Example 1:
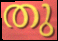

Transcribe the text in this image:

തു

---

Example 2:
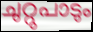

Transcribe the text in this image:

ചുറ്റുപാടും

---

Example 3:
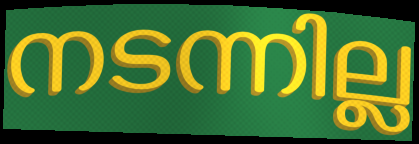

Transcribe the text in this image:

നടന്നില്ല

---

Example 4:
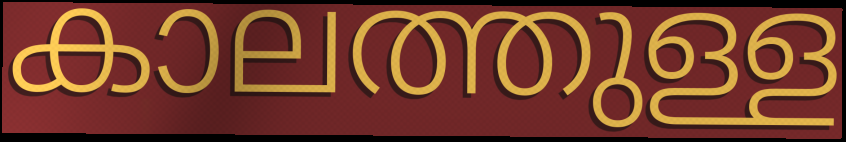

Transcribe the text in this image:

കാലത്തുള്ള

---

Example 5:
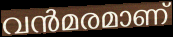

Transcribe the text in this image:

വൻമരമാണ്